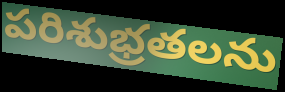
పరిశుభ్రతలను